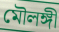
মৌলঙ্গী